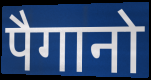
पैगानो